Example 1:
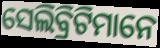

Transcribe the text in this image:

ସେଲିବ୍ରିଟିମାନେ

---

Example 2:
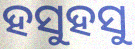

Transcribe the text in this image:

ହସୁହସୁ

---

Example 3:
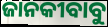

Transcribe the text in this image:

ଜାନକୀବାବୁ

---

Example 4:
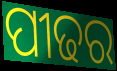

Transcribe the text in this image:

ପୀଢର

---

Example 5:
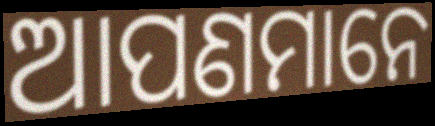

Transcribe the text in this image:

ଆପଣମାନେ